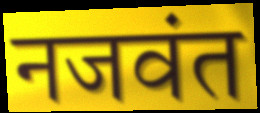
नजवंत